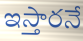
ఇస్తారనే